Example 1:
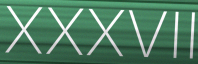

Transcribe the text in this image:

XXXVII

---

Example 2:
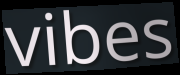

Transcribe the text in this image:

vibes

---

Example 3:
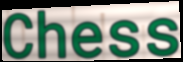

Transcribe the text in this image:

Chess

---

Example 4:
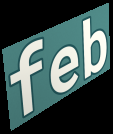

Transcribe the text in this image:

feb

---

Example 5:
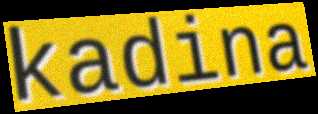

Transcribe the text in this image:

kadina